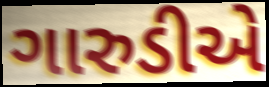
ગારુડીએ